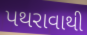
પથરાવાથી